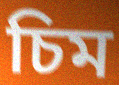
চিম